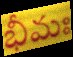
భీమః